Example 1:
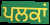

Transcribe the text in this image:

ਪਲਕਾਂ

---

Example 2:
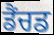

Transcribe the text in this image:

ਡੈਂਚਡ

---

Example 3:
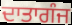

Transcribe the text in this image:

ਦਾਤਾਗੰਜ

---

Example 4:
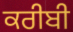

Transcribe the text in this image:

ਕਰੀਬੀ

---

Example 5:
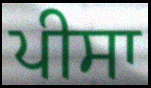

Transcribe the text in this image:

ਪੀਸਾ